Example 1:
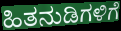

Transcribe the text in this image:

ಹಿತನುಡಿಗಳಿಗೆ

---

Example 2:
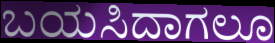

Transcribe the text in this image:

ಬಯಸಿದಾಗಲೂ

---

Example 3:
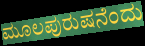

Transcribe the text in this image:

ಮೂಲಪುರುಷನೆಂದು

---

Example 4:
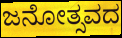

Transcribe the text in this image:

ಜನೋತ್ಸವದ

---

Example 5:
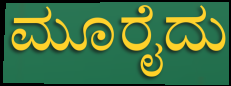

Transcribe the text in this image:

ಮೂರೈದು